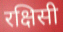
रक्षिसी